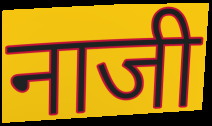
नाजी